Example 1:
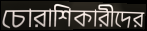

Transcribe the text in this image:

চোরাশিকারীদের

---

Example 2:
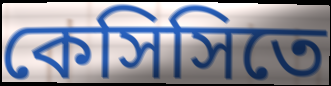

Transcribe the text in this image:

কেসিসিতে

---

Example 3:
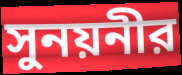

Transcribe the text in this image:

সুনয়নীর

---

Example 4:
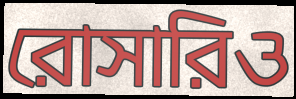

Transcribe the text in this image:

রোসারিও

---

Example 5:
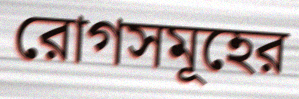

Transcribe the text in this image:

রোগসমূহের